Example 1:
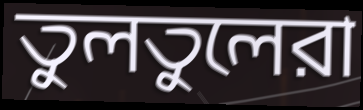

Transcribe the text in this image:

তুলতুলেরা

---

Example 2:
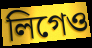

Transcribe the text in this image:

লিগেও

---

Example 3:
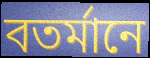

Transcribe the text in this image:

বতর্মানে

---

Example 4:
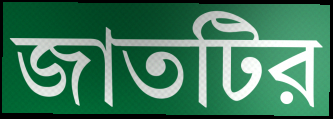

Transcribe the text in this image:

জাতটির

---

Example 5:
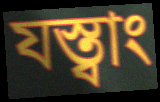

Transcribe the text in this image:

যস্ত্বাং